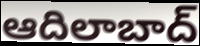
ఆదిలాబాద్